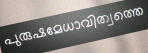
പുരുഷമേധാവിത്വത്തെ